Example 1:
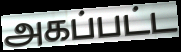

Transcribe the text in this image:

அகப்பட்ட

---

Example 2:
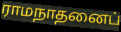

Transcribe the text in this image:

ராமநாதனைப்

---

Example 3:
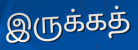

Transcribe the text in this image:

இருக்கத்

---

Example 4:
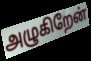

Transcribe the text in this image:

அழுகிறேன்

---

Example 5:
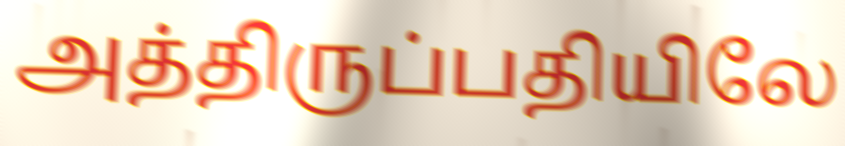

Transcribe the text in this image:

அத்திருப்பதியிலே